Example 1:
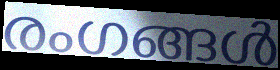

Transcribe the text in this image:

രംഗങ്ങൾ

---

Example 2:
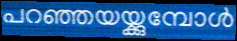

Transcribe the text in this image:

പറഞ്ഞയയ്ക്കുമ്പോൾ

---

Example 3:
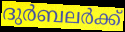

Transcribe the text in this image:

ദുർബലർക്ക്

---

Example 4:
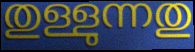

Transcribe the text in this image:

തുള്ളുന്നതു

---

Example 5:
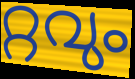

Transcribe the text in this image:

റ്റവും